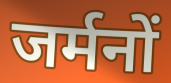
जर्मनों